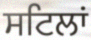
ਸਟਿਲਾਂ